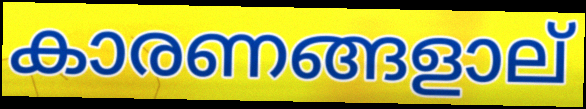
കാരണങ്ങളാല്